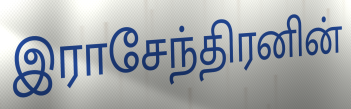
இராசேந்திரனின்